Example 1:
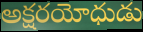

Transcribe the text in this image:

అక్షరయోధుడు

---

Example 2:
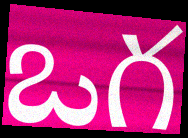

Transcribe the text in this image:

ఒగ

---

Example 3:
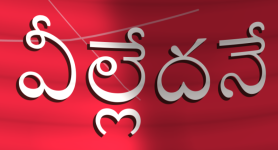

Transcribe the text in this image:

వీల్లేదనే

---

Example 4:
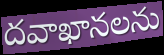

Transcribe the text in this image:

దవాఖానలను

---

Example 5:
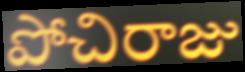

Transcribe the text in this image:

పోచిరాజు